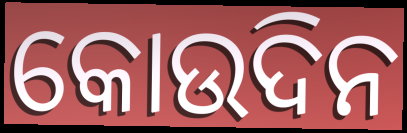
କୋଉଦିନ